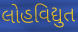
લોહવિદ્યુત